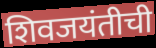
शिवजयंतीची